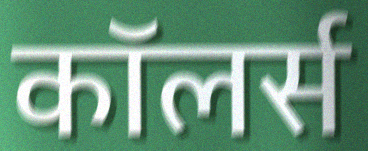
कॉलर्स